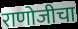
राणोजीचा